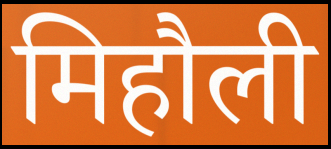
मिहौली